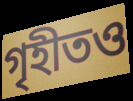
গৃহীতও